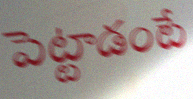
పెట్టాడంటే